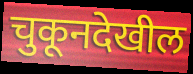
चुकूनदेखील